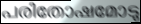
പരിതോഷമോടു